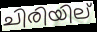
ചിരിയില്